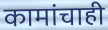
कामांचाही